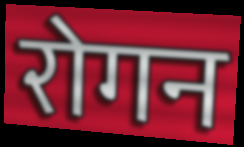
रोगन